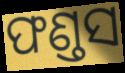
ଫଣ୍ଡସ